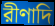
রীণাদি